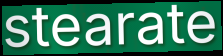
stearate